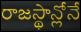
రాజస్థాన్లోనే